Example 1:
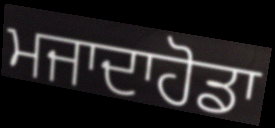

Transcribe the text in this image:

ਮਜਾਦਾਹੋਡਾ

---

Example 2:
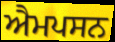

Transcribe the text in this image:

ਐਮਪਸਨ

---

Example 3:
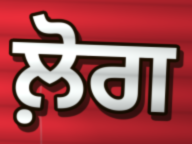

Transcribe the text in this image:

ਲ਼ੋਗ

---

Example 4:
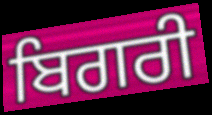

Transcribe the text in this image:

ਬਿਗਰੀ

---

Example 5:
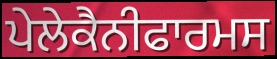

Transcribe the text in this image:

ਪੇਲੇਕੈਨੀਫਾਰਮਸ